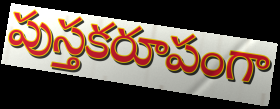
పుస్తకరూపంగా